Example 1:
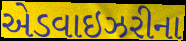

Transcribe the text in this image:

એડવાઇઝરીના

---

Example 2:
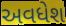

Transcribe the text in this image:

અવધેશ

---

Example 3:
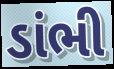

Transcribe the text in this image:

ડાંભી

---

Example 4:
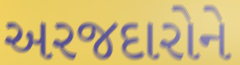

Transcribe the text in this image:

અરજદારોને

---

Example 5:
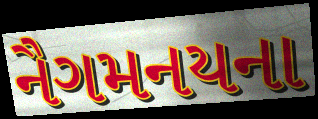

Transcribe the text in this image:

નૈગમનયના